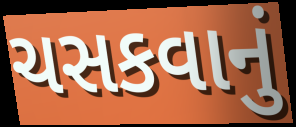
ચસકવાનું